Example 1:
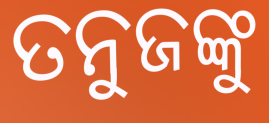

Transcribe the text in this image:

ତନୁଜଙ୍କୁ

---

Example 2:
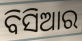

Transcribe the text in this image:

ବିସିଆର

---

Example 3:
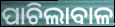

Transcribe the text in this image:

ପାଚିଲାବାଳ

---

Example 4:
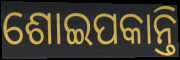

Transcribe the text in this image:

ଶୋଇପକାନ୍ତି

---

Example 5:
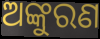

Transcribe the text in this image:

ଅଙ୍କୁରଣ